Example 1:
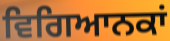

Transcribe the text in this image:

ਵਿਗਿਆਨਕਾਂ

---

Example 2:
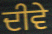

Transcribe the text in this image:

ਦੀਵੇ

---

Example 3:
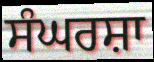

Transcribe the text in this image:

ਸੰਘਰਸ਼ਾ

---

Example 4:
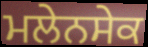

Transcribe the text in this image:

ਮਲੇਨਸੇਕ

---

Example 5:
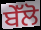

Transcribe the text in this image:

ਬੇੱਲੋ